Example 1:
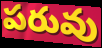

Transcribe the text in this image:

పరువు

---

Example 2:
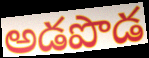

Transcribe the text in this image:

అడపొడ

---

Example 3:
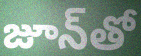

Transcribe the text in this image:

జూన్‌తో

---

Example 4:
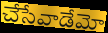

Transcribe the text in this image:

చేసేవాడేమో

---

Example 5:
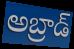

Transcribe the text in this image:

అబ్రాడ్